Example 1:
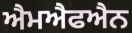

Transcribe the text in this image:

ਐਮਐਫਐਨ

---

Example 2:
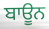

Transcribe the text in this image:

ਬਾਊਨ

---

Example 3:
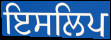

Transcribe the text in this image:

ਇਸਲਿਪ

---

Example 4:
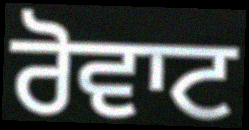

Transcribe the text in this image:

ਰੋਵਾਟ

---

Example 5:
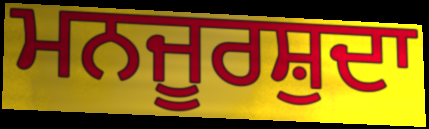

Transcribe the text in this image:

ਮਨਜੂਰਸ਼ੁਦਾ